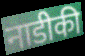
नाडीकी